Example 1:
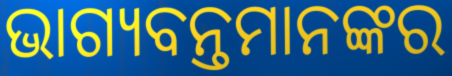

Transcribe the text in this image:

ଭାଗ୍ୟବନ୍ତମାନଙ୍କର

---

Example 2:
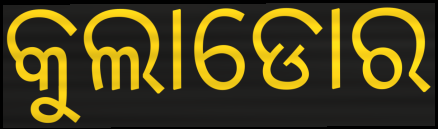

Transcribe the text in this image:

କୁଲାଡୋର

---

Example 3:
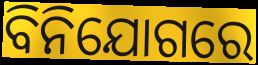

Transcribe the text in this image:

ବିନିଯୋଗରେ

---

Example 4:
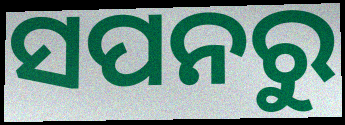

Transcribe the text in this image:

ସପନରୁ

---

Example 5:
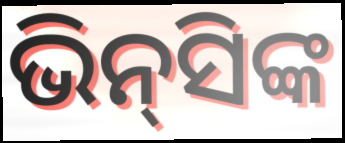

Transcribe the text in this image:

ଭିନ୍‍ସିଙ୍କ